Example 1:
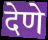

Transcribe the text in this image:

देणे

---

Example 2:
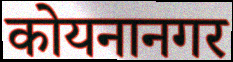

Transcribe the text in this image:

कोयनानगर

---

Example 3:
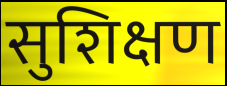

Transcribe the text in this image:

सुशिक्षण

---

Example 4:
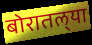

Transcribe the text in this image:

बोरातल्या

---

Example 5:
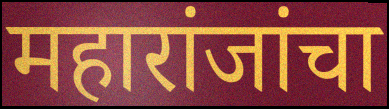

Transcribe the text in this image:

महारांजांचा